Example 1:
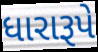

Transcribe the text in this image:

ધારારૂપે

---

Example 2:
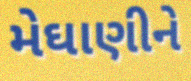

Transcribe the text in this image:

મેઘાણીને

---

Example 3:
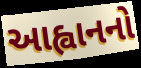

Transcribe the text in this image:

આહ્વાનનો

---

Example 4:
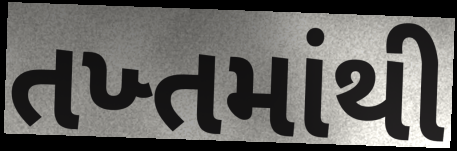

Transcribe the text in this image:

તખ્તમાંથી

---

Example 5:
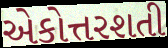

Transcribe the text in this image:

એકોત્તરશતી